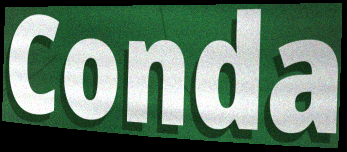
Conda